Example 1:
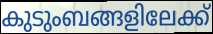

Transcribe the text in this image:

കുടുംബങ്ങളിലേക്ക്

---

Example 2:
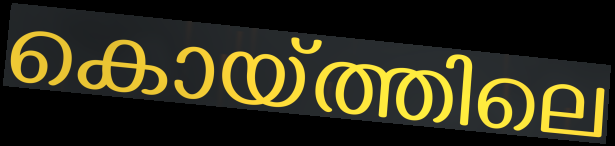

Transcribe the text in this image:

കൊയ്ത്തിലെ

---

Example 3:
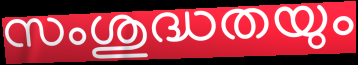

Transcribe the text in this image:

സംശുദ്ധതയും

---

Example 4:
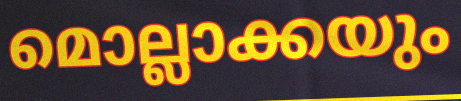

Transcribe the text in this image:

മൊല്ലാക്കയും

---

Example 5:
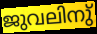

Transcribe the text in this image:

ജുവലിനു്